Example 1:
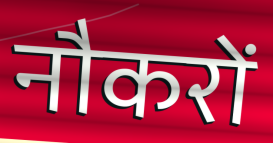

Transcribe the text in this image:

नौकरों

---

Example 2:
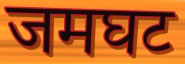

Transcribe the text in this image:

जमघट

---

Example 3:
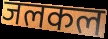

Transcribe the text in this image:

जलकल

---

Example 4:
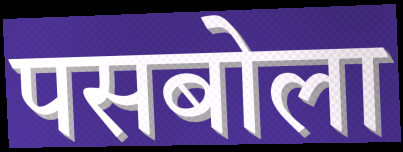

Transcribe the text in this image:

पसबोला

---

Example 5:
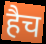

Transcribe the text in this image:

हैच